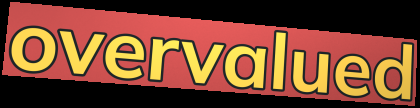
overvalued